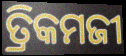
ତ୍ରିକମଜୀ